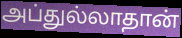
அப்துல்லாதான்